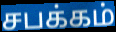
சபக்கம்